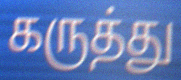
கருத்து